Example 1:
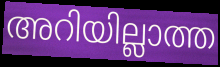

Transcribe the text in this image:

അറിയില്ലാത്ത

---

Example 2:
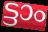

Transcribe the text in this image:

ട്ടാം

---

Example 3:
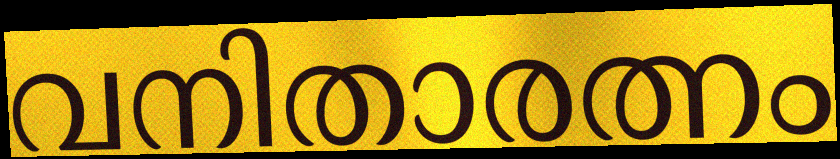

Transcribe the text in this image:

വനിതാരത്നം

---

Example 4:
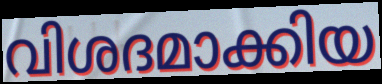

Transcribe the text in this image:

വിശദമാക്കിയ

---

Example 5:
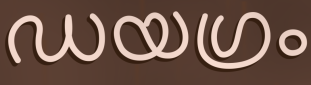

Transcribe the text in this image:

ഡയഗ്രം